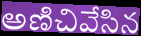
అణిచివేసిన